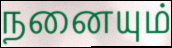
நனையும்